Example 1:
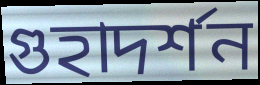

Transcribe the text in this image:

গুহাদর্শন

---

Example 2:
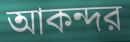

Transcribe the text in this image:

আকন্দর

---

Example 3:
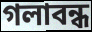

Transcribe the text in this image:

গলাবন্ধ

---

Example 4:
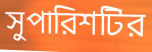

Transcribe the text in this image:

সুপারিশটির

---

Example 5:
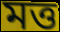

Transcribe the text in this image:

মত্ত